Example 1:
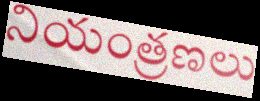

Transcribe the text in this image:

నియంత్రణలు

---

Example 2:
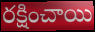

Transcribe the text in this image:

రక్షించాయి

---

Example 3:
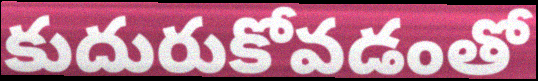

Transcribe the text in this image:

కుదురుకోవడంతో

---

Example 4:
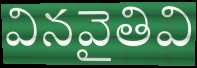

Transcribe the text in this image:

వినవైతివి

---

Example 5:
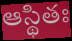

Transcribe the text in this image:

ఆస్థితః